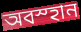
অবস্হান